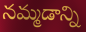
నమ్మడాన్ని